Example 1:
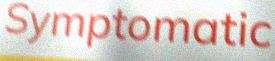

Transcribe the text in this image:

Symptomatic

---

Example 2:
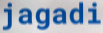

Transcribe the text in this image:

jagadi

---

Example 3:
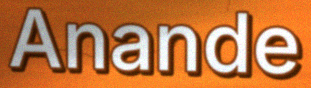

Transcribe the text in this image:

Anande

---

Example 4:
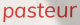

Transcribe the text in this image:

pasteur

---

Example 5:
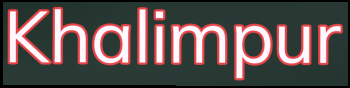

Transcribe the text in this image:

Khalimpur